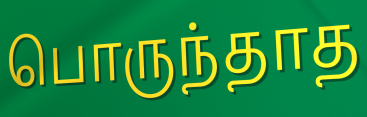
பொருந்தாத